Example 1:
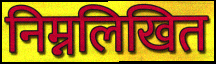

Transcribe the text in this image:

निम्नलिखित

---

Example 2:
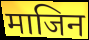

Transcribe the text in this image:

माजिन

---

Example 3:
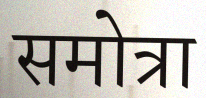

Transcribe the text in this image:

समोत्रा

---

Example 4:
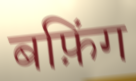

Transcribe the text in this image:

बफ़िंग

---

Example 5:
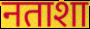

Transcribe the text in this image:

नताशा